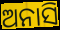
ଅନାସି